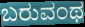
ಬರುವಂಥ